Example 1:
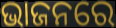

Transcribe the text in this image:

ଭାଜନରେ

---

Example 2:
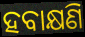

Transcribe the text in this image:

ହବାକ୍ଷଣି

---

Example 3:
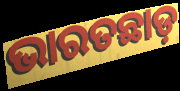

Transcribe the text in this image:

ଭାରତଛାଡ଼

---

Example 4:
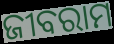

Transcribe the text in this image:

ଜୀବରାମ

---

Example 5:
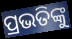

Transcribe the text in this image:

ପ୍ରଭତିଙ୍କୁ